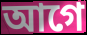
আগে